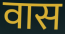
वास